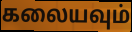
கலையவும்